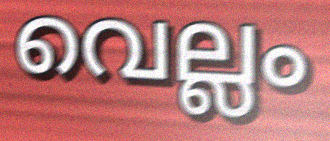
വെല്ലം